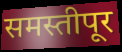
समस्तीपूर